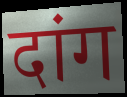
दांग